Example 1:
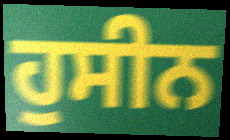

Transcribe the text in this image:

ਹੁਸੀਨ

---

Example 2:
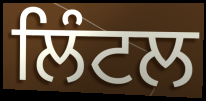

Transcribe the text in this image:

ਲਿੰਟਲ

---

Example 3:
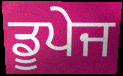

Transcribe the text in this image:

ਡੂਪੇਜ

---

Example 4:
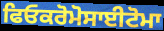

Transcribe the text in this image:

ਫਿਓਕਰੋਮੋਸਾਈਟੋਮਾ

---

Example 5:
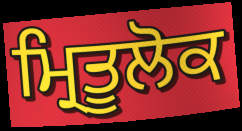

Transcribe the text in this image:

ਮ੍ਰਿਤੂਲੋਕ